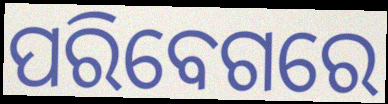
ପରିବେଗରେ